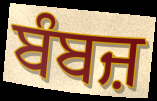
ਬੰਬਜ਼